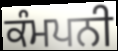
ਕੰਮਪਨੀ